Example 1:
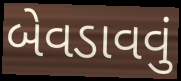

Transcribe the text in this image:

બેવડાવવું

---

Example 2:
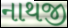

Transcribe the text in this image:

નાથજી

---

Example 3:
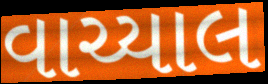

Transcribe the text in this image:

વાચ્યાલ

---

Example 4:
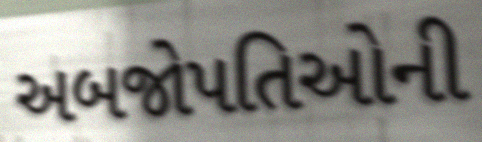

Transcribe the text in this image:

અબજોપતિઓની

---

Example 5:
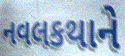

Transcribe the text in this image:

નવલકથાને